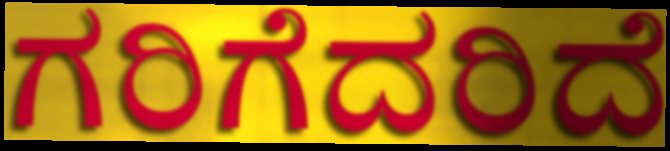
ಗರಿಗೆದರಿದೆ